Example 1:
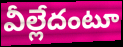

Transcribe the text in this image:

వీల్లేదంటూ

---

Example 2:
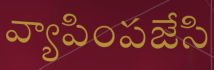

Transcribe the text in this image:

వ్యాపింపజేసి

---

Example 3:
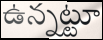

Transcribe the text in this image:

ఉన్నట్టూ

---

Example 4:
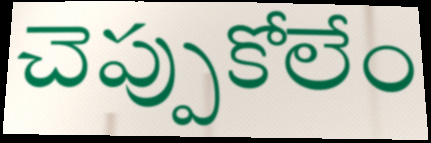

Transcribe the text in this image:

చెప్పుకోలేం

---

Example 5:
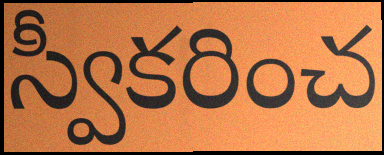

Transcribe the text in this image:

స్వీకరించ